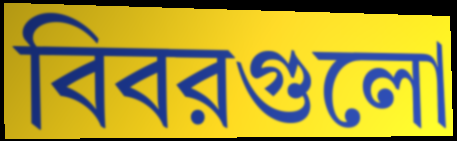
বিবরগুলো